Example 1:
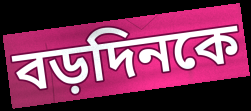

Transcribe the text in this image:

বড়দিনকে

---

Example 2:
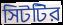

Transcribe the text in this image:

সিটটির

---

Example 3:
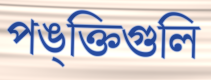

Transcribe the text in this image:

পঙ্‌ক্তিগুলি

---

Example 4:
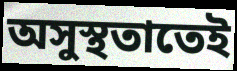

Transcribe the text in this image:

অসুস্থতাতেই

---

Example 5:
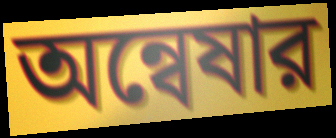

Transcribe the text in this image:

অন্বেষার